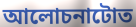
আলোচনাটোত